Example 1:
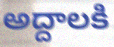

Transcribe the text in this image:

అద్దాలకి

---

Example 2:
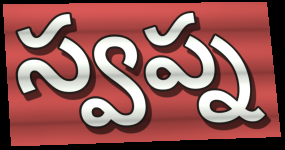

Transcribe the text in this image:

స్వప్న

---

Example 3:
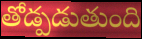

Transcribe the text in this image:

తోడ్పడుతుంది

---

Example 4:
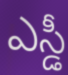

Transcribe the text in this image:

ఎస్డీ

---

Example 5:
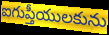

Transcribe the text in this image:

ఐగుప్తీయులకును